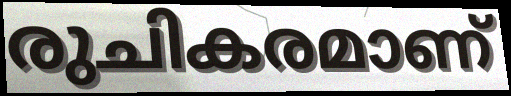
രുചികരമാണ്